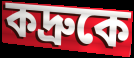
কদ্রুকে